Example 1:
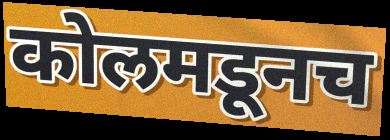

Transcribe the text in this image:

कोलमडूनच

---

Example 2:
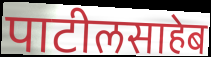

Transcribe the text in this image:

पाटीलसाहेब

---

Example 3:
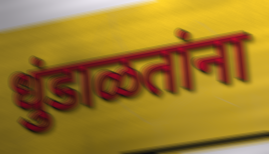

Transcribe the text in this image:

धुंडाळतांना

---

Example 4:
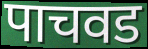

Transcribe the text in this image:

पाचवड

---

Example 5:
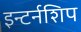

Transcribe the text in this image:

इन्टर्नशिप